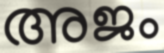
അജം